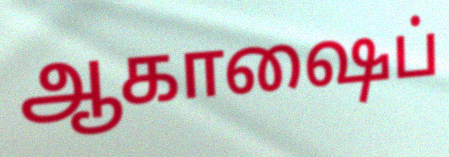
ஆகாஷைப்